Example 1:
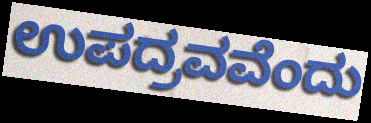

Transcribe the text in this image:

ಉಪದ್ರವವೆಂದು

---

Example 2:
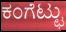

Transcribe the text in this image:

ಕಂಗೆಟ್ಟು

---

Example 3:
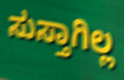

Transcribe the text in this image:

ಸುಸ್ತಾಗಿಲ್ಲ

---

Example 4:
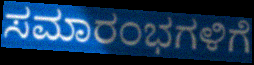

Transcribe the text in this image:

ಸಮಾರಂಭಗಳಿಗೆ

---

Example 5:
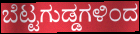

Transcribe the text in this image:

ಬೆಟ್ಟಗುಡ್ಡಗಳಿಂದ